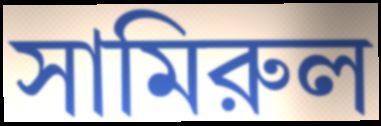
সামিরুল